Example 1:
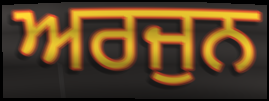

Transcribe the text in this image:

ਅਰਜੁਨ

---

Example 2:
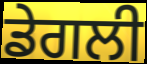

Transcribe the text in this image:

ਡੇਗਲੀ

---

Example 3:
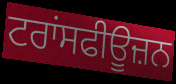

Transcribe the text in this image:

ਟਰਾਂਸਫੀਊਜ਼ਨ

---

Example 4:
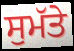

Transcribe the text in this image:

ਸੁਮੱਤੇ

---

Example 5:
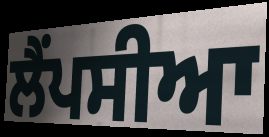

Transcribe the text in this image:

ਲੈਂਪਸੀਆ